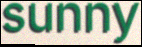
sunny